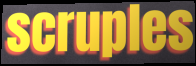
scruples